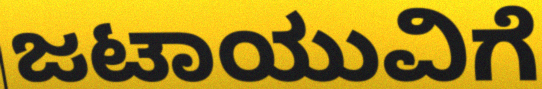
ಜಟಾಯುವಿಗೆ